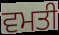
ਵਮਤੀ